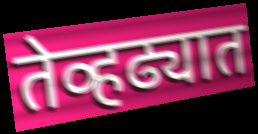
तेव्हढ्यात